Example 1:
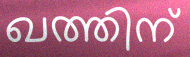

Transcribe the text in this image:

ഖത്തിന്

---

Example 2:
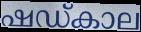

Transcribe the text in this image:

ഷഡ്കാല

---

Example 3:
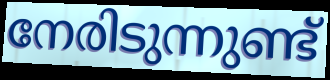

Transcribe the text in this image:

നേരിടുന്നുണ്ട്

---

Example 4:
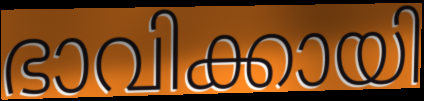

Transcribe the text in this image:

ഭാവിക്കായി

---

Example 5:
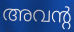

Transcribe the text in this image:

അവന്റ